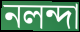
নলন্দা